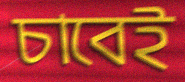
চাবেই